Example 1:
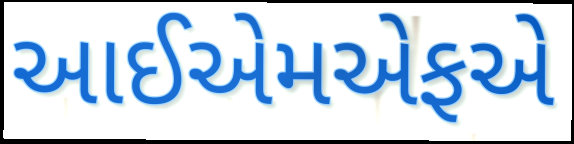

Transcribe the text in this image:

આઈએમએફએ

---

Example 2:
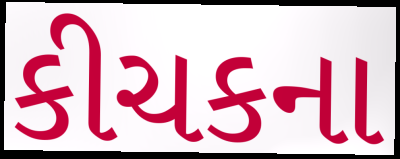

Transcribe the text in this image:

કીચકના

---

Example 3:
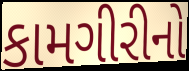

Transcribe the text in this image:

કામગીરીનો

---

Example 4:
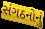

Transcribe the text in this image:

સંગઠનોનું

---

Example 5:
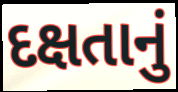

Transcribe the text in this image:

દક્ષતાનું